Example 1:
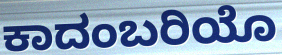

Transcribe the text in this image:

ಕಾದಂಬರಿಯೊ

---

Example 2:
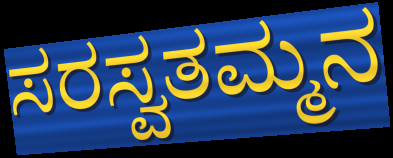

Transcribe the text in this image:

ಸರಸ್ವತಮ್ಮನ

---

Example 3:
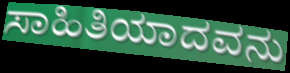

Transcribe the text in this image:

ಸಾಹಿತಿಯಾದವನು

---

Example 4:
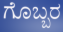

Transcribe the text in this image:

ಗೊಬ್ಬರ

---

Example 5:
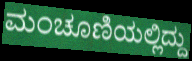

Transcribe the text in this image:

ಮಂಚೂಣಿಯಲ್ಲಿದ್ದು